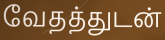
வேதத்துடன்